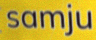
samju